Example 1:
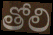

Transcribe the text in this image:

తోలి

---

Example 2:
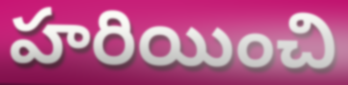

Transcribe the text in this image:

హరియించి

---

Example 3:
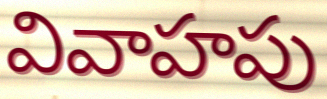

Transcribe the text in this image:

వివాహపు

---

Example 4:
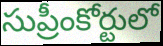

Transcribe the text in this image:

సుప్రీంకోర్టులో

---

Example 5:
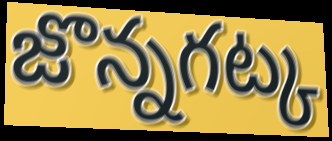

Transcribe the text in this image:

జొన్నగట్క